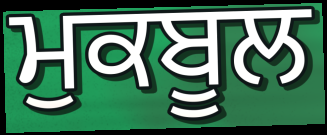
ਮੁਕਬੂਲ